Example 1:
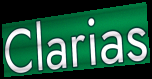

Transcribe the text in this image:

Clarias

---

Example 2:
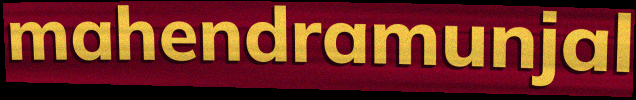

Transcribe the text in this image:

mahendramunjal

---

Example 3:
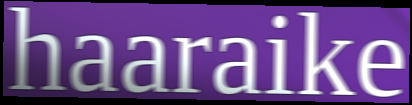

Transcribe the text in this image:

haaraike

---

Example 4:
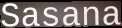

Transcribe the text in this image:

Sasana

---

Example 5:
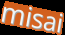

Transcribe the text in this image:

misai